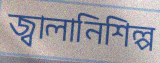
জ্বালানিশিল্প